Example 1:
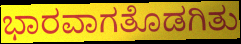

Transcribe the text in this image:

ಭಾರವಾಗತೊಡಗಿತು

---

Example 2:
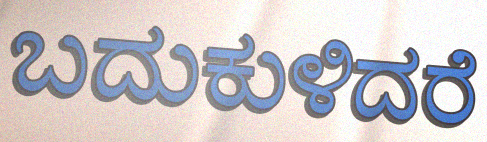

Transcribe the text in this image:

ಬದುಕುಳಿದರೆ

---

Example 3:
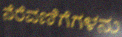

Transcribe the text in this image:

ನೆರೆವಣಿಗೆಗಳನು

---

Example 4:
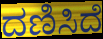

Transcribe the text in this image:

ದಣಿಸಿದೆ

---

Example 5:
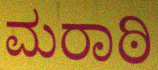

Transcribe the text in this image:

ಮರಾಠಿ